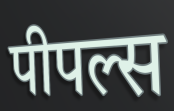
पीपल्स